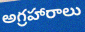
అగ్రహారాలు